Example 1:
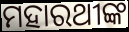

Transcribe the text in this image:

ମହାରଥୀଙ୍କ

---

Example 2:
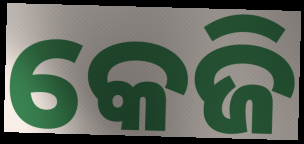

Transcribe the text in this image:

କେଜି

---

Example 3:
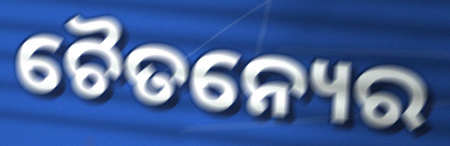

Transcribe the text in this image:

ଚୈତନ୍ୟେର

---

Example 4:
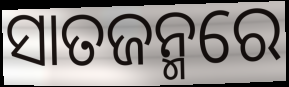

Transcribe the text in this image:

ସାତଜନ୍ମରେ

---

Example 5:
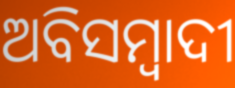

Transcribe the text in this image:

ଅବିସମ୍ବାଦୀ